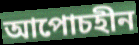
আপোচহীন